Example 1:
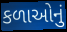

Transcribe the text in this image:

કળાઓનું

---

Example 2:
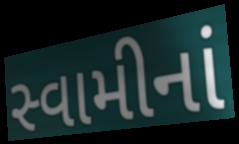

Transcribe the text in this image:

સ્વામીનાં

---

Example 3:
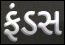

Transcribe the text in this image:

ફંડસ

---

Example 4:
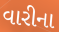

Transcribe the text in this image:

વારીના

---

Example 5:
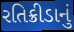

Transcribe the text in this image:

રતિક્રીડાનું